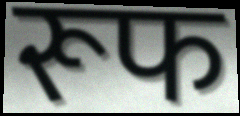
रूफ